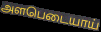
அளபெடையாய்